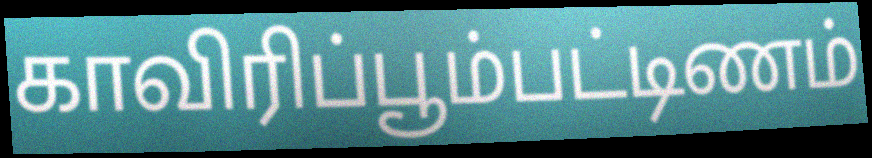
காவிரிப்பூம்பட்டிணம்